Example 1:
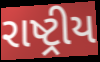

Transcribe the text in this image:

રાષ્ટ્રીય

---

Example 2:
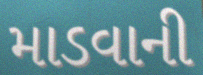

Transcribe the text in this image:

માડવાની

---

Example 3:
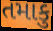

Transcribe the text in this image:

તમાકુ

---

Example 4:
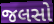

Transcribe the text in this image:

જલસો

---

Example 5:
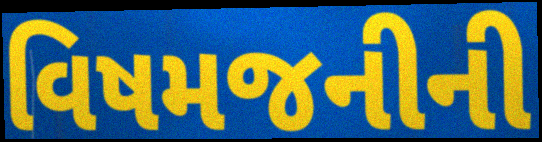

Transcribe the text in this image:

વિષમજનીની